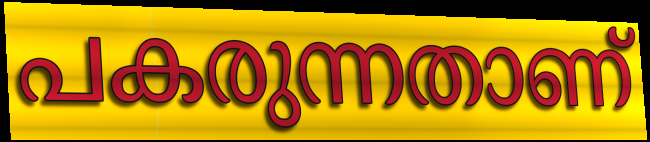
പകരുന്നതാണ്